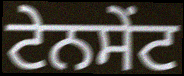
ਟੇਨਸੇਂਟ